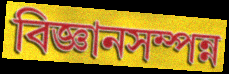
বিজ্ঞানসম্পন্ন